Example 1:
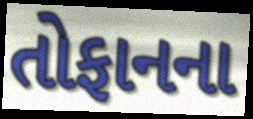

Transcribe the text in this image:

તોફાનના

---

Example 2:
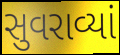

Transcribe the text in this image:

સુવરાવ્યાં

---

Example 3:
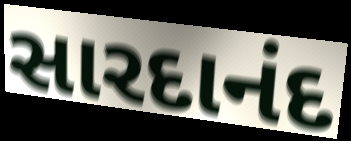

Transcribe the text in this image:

સારદાનંદ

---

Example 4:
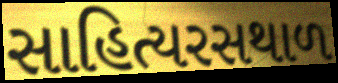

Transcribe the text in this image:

સાહિત્યરસથાળ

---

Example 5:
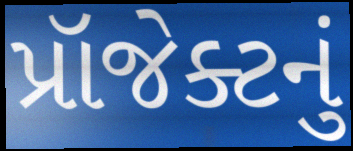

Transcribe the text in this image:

પ્રૉજેક્ટનું